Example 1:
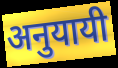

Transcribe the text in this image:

अनुयायी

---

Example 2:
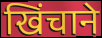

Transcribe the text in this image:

खिंचाने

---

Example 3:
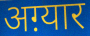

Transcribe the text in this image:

अग़्यार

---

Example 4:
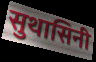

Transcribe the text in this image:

सुथासिनी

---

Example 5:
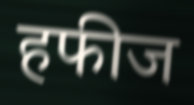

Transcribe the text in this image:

हफीज